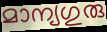
മാന്യഗുരു